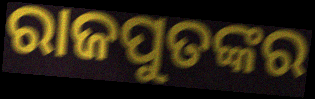
ରାଜପୁତଙ୍କର